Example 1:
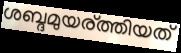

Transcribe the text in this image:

ശബ്ദമുയര്ത്തിയത്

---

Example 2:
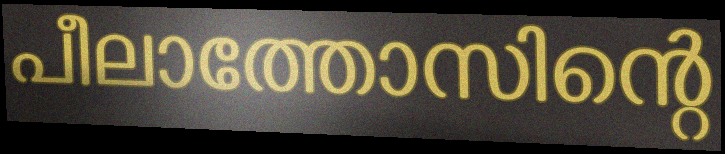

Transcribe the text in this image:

പീലാത്തോസിന്റെ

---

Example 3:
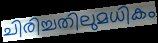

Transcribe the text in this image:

ചിരിച്ചതിലുമധികം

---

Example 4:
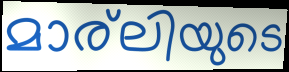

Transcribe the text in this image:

മാര്ലിയുടെ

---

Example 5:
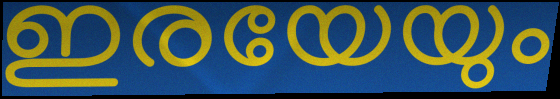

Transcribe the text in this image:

ഇരയേയും